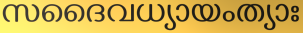
സദൈവധ്യായംത്യാഃ